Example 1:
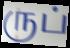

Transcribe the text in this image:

ருப்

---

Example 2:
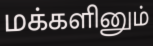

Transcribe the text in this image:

மக்களினும்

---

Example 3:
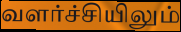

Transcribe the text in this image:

வளர்ச்சியிலும்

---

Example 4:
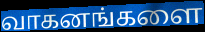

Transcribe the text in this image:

வாகனங்களை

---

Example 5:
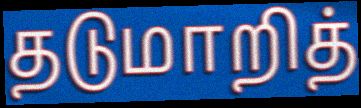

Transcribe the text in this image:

தடுமாறித்